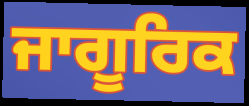
ਜਾਗੂਰਿਕ